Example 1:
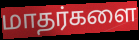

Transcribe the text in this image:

மாதர்களை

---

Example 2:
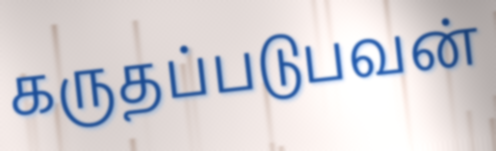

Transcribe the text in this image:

கருதப்படுபவன்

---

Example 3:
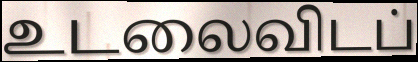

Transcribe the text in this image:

உடலைவிடப்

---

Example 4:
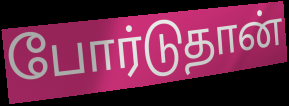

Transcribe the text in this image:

போர்டுதான்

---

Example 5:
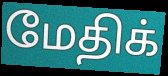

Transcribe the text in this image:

மேதிக்